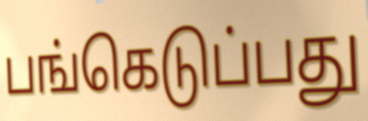
பங்கெடுப்பது